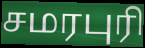
சமரபுரி